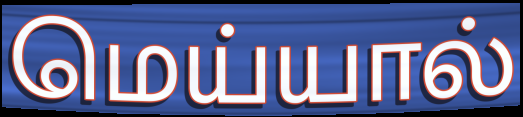
மெய்யால்